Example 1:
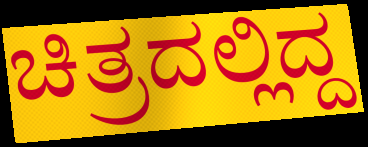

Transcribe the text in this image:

ಚಿತ್ರದಲ್ಲಿದ್ದ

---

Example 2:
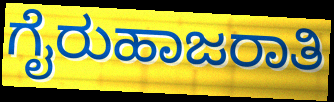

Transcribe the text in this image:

ಗೈರುಹಾಜರಾತಿ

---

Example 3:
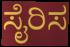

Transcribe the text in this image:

ಸೈರಿಸ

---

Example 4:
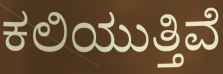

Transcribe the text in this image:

ಕಲಿಯುತ್ತಿವೆ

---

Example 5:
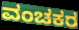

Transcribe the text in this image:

ವಂಚಕರ